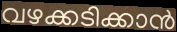
വഴക്കടിക്കാൻ